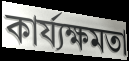
কাৰ্য্যক্ষমতা